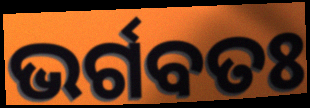
ଭର୍ଗବତଃ